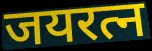
जयरत्न